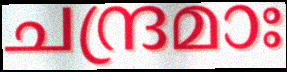
ചന്ദ്രമാഃ